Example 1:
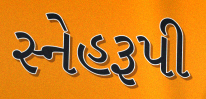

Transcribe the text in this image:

સ્નેહરૂપી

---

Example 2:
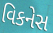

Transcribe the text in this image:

વિકનેસ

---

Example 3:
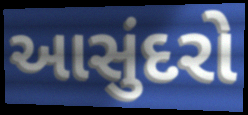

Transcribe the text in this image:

આસુંદરો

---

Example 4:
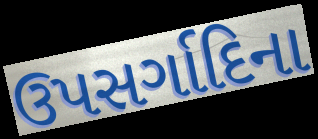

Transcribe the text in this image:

ઉપસર્ગાદિના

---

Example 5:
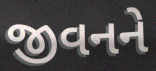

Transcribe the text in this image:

જીવનને